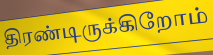
திரண்டிருக்கிறோம்